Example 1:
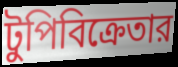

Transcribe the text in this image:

টুপিবিক্রেতার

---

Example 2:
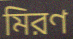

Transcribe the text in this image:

মিরণ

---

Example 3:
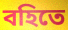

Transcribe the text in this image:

বহিতে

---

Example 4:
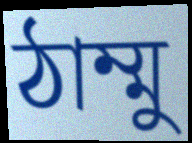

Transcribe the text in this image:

ঠাম্মু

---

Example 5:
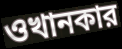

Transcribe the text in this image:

ওখানকার